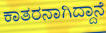
ಕಾತರನಾಗಿದ್ದಾನೆ